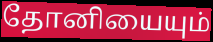
தோனியையும்